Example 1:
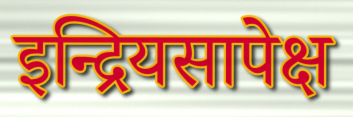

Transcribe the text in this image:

इन्द्रियसापेक्ष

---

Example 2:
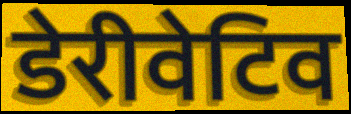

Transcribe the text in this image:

डेरीवेटिव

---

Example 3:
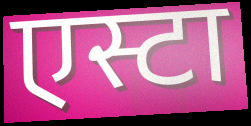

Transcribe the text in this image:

एस्टा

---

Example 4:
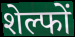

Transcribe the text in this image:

शेल्फों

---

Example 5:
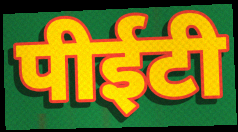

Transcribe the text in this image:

पीईटी